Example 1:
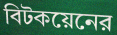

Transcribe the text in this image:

বিটকয়েনের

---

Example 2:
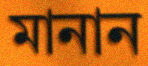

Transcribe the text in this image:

মানান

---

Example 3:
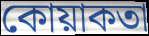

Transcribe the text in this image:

কোয়াকতা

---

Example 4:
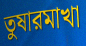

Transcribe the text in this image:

তুষারমাখা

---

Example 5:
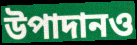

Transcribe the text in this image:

উপাদানও